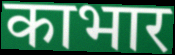
काभार